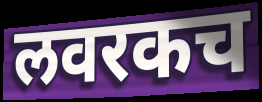
लवरकच